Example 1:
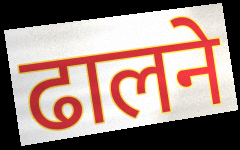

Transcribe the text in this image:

ढालने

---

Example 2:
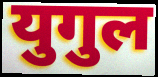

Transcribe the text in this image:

युगुल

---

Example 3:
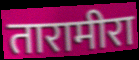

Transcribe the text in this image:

तारामीरा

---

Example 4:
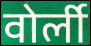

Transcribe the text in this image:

वोर्ली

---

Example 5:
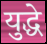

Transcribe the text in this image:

युद्धे